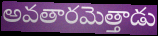
అవతారమెత్తాడు